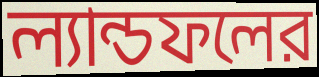
ল্যান্ডফলের